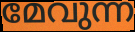
മേവുന്ന